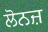
ਲੋਨਜ਼